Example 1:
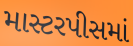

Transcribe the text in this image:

માસ્ટરપીસમાં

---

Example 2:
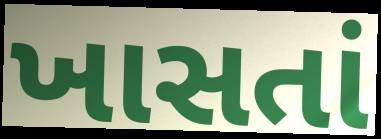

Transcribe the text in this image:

ખાસતાં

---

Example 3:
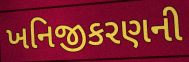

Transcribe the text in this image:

ખનિજીકરણની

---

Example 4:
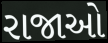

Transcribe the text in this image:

રાજાઓ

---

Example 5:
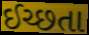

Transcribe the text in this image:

ઈચ્છતા